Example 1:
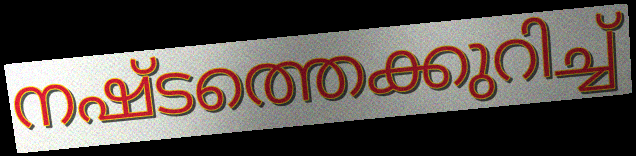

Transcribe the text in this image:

നഷ്ടത്തെക്കുറിച്ച്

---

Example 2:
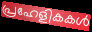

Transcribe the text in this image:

പ്രഹേളികകൾ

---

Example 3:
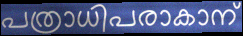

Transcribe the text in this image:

പത്രാധിപരാകാന്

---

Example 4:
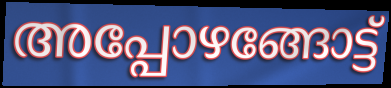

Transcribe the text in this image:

അപ്പോഴങ്ങോട്ട്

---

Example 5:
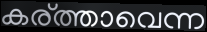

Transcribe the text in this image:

കര്ത്താവെന്ന